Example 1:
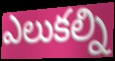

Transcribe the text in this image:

ఎలుకల్ని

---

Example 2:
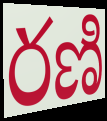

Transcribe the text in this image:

రణి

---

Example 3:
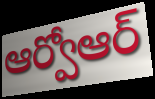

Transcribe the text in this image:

ఆర్వోఆర్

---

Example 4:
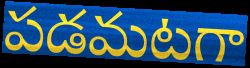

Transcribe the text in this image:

పడమటగా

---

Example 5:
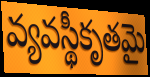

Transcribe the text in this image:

వ్యవస్థీకృతమై